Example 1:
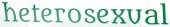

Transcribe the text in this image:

heterosexual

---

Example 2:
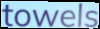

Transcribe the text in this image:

towels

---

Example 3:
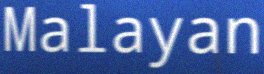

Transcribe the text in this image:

Malayan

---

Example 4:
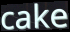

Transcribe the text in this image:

cake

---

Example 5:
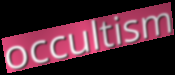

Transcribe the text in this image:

occultism